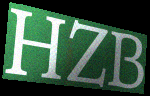
HZB